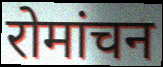
रोमांचन